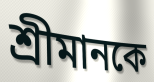
শ্রীমানকে